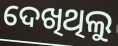
ଦେଖିଥିଲୁ